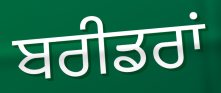
ਬਰੀਡਰਾਂ